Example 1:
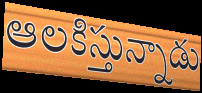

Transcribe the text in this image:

ఆలకిస్తున్నాడు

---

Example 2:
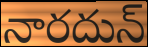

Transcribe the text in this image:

నారదున్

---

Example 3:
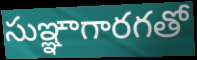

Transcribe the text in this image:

సుఞ్ఞాగారగతో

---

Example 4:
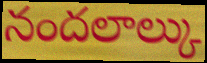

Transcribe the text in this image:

నందలాల్కు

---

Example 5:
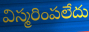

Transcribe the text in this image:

విస్మరింపలేదు